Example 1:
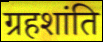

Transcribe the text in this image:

ग्रहशांति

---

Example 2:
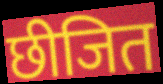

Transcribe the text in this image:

छीजित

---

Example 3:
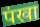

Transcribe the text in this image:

पंखा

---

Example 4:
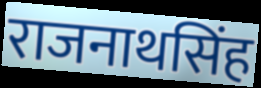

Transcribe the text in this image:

राजनाथसिंह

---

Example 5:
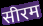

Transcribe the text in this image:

सीरम